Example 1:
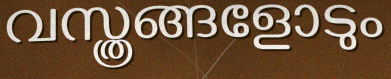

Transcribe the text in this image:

വസ്ത്രങ്ങളോടും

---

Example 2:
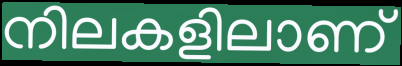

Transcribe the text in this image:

നിലകളിലാണ്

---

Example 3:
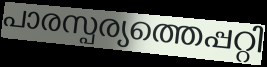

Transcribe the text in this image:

പാരസ്പര്യത്തെപ്പറ്റി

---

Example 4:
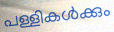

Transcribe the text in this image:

പള്ളികൾക്കും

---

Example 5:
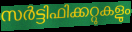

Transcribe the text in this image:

സർട്ടിഫിക്കറ്റുകളും